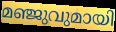
മഞ്ജുവുമായി